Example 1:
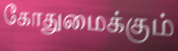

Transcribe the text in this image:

கோதுமைக்கும்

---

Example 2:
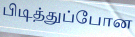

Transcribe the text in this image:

பிடித்துப்போன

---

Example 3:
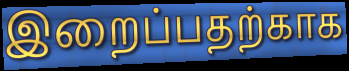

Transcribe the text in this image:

இறைப்பதற்காக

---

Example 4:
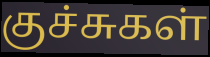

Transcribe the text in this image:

குச்சுகள்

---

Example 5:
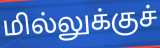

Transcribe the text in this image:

மில்லுக்குச்